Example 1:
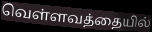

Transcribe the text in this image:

வெள்ளவத்தையில்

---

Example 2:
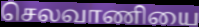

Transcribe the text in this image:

செலவாணியை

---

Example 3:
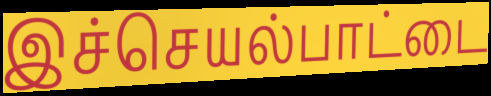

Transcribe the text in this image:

இச்செயல்பாட்டை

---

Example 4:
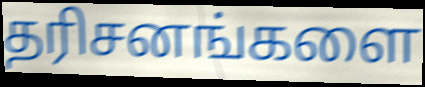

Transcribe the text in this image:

தரிசனங்களை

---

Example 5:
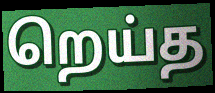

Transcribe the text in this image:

றெய்த